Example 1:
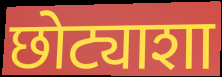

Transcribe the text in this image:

छोट्याशा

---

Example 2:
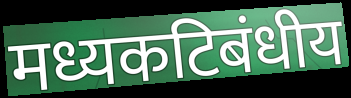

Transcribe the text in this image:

मध्यकटिबंधीय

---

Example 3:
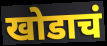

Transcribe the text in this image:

खोडाचं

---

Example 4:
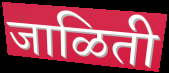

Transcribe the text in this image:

जाळिती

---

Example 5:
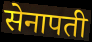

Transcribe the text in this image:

सेनापती